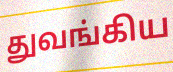
துவங்கிய